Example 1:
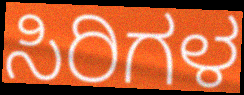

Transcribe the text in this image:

ಸಿರಿಗಳ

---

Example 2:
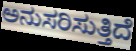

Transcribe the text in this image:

ಅನುಸರಿಸುತ್ತಿದೆ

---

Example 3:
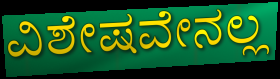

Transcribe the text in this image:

ವಿಶೇಷವೇನಲ್ಲ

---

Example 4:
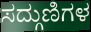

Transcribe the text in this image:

ಸದ್ಗುಣಿಗಳ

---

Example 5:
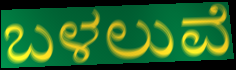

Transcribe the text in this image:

ಬಳಲುವೆ